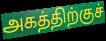
அகத்திற்குச்